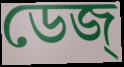
ডেজ্